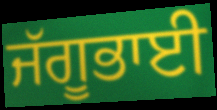
ਜੱਗੂਭਾਈ